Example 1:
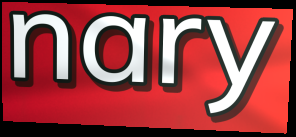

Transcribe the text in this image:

nary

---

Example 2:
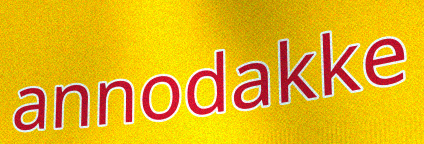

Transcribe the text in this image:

annodakke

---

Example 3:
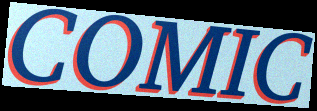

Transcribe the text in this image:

COMIC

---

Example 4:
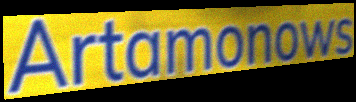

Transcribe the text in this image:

Artamonows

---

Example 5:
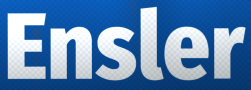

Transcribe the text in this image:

Ensler